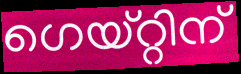
ഗെയ്റ്റിന്